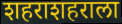
शहराशहराला